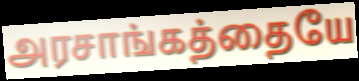
அரசாங்கத்தையே